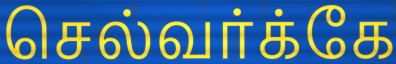
செல்வர்க்கே